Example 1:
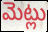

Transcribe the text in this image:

మెట్లు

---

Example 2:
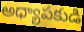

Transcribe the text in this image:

అధ్యాపకుడి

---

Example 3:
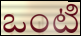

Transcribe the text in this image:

ఒంటి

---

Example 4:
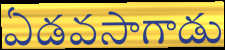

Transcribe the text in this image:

ఏడవసాగాడు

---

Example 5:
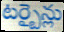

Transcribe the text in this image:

టర్బైన్లు